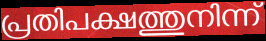
പ്രതിപക്ഷത്തുനിന്ന്